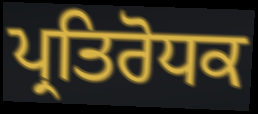
ਪ੍ਰਤਿਰੋਧਕ